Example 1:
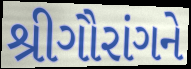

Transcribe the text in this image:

શ્રીગૌરાંગને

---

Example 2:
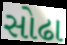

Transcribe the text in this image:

સોઢા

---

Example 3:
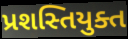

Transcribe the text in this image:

પ્રશસ્તિયુક્ત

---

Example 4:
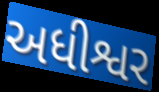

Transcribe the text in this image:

અધીશ્વર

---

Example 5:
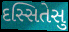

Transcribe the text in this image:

દસ્સિતેસુ